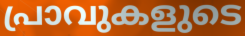
പ്രാവുകളുടെ